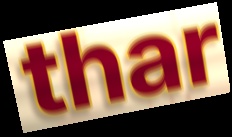
thar